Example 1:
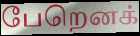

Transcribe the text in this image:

பேறெனக்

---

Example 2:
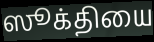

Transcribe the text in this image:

ஸூக்தியை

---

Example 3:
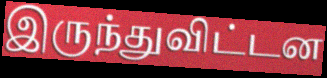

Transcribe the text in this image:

இருந்துவிட்டன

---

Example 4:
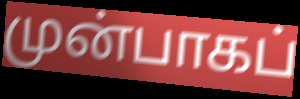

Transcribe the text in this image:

முன்பாகப்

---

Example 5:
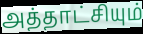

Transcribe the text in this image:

அத்தாட்சியும்